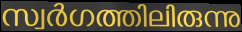
സ്വർഗത്തിലിരുന്നു